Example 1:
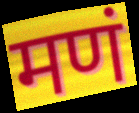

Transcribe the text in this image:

मणं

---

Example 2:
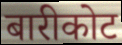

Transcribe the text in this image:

बारीकोट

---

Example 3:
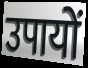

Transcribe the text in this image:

उपायों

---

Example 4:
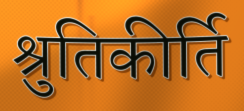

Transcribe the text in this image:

श्रुतिकीर्ति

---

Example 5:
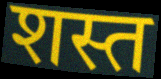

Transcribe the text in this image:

शस्त